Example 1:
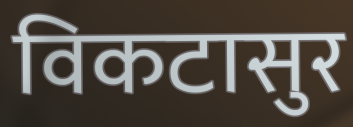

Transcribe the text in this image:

विकटासुर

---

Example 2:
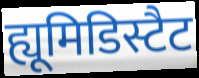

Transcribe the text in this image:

ह्यूमिडिस्टैट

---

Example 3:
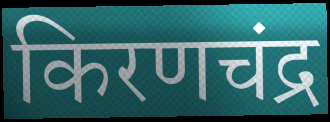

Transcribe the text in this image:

किरणचंद्र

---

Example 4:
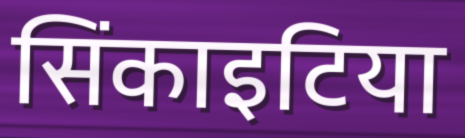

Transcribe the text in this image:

सिंकाइटिया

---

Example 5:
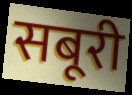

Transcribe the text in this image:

सबूरी